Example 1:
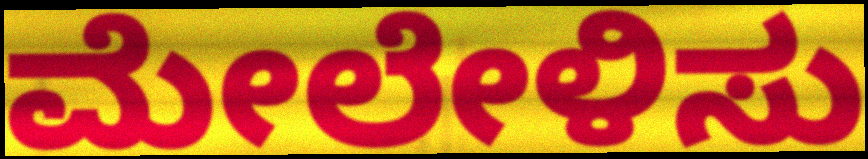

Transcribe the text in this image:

ಮೇಲೇಳಿಸು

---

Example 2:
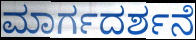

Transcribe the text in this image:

ಮಾರ್ಗದರ್ಶನೆ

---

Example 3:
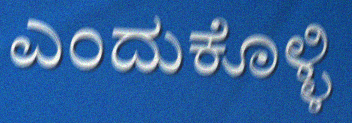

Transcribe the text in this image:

ಎಂದುಕೊಳ್ಳಿ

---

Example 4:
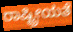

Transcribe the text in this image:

ರಾಷ್ಟ್ರೀಯತೆ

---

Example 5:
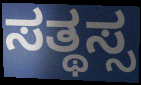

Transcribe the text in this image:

ಸತ್ಥಸ್ಸ